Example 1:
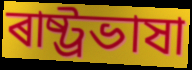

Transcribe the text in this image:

ৰাষ্ট্ৰভাষা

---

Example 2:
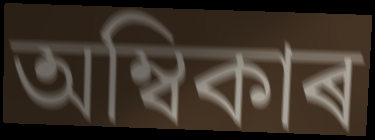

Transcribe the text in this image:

অম্বিকাৰ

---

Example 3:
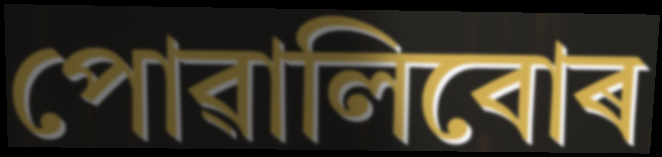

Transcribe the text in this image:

পোৱালিবোৰ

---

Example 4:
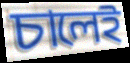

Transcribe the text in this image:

চালেই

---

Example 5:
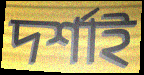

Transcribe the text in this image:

দৰ্শাই